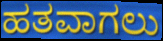
ಹತವಾಗಲು